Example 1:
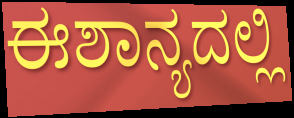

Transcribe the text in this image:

ಈಶಾನ್ಯದಲ್ಲಿ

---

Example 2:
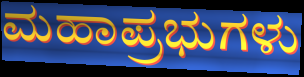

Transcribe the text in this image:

ಮಹಾಪ್ರಭುಗಳು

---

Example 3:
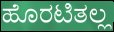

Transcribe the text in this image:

ಹೊರಟಿತಲ್ಲ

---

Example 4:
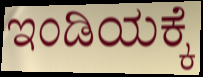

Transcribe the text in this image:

ಇಂಡಿಯಕ್ಕೆ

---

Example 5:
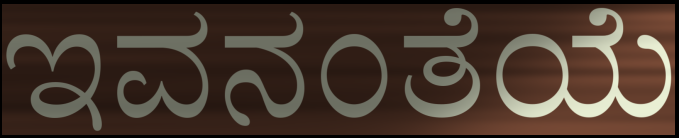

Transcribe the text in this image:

ಇವನಂತೆಯೆ